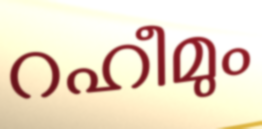
റഹീമും